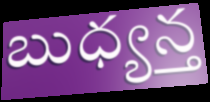
బుధ్యన్త